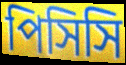
পিসিসি